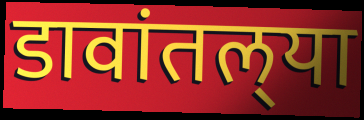
डावांतल्या